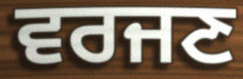
ਵਰਜਣ